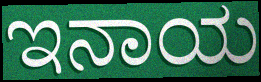
ಇನಾಯ